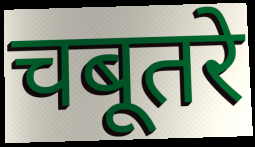
चबूतरे